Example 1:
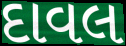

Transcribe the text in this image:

દાવલ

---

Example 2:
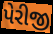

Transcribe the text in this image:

પેરીજી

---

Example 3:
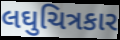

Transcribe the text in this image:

લઘુચિત્રકાર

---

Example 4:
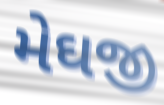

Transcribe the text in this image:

મેઘજી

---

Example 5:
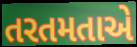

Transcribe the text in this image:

તરતમતાએ